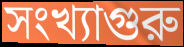
সংখ্যাগুরু